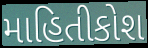
માહિતીકોશ